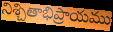
నిశ్చితాభిప్రాయము